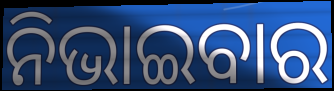
ନିଭାଇବାର